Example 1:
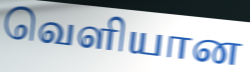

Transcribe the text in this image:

வெளியான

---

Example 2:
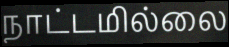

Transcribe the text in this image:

நாட்டமில்லை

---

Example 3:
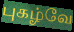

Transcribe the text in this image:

புகழ்வே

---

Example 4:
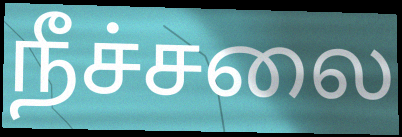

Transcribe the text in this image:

நீச்சலை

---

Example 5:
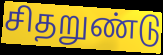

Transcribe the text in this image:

சிதறுண்டு